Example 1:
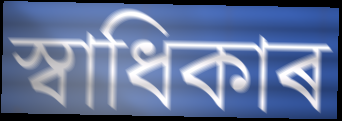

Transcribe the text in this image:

স্বাধিকাৰ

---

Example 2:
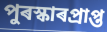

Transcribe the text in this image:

পুৰস্কাৰপ্ৰাপ্ত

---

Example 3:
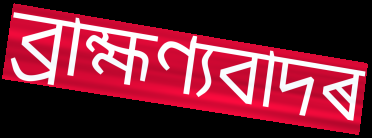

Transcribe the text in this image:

ব্ৰাহ্মণ্যবাদৰ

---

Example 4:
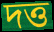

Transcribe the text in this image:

দত্ত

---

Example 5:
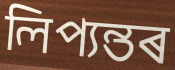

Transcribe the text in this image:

লিপ্যন্তৰ